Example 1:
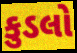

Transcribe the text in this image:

કુડલો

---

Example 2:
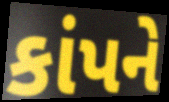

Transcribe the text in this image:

કાંપને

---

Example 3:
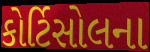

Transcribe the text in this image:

કોર્ટિસોલના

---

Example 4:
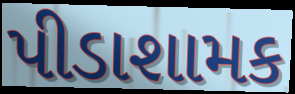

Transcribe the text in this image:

પીડાશામક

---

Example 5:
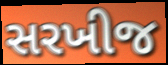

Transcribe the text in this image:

સરખીજ